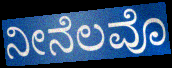
ನೀನೆಲವೊ